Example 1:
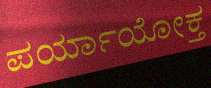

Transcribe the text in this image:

ಪರ್ಯಾಯೋಕ್ತ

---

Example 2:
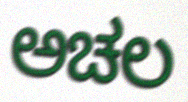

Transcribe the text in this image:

ಅಚಲ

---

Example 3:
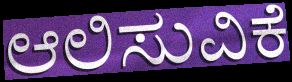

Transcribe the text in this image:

ಆಲಿಸುವಿಕೆ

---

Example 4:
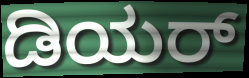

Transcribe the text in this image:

ಡಿಯರ್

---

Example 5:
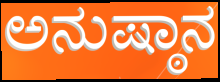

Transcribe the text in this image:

ಅನುಷ್ಠಾನ